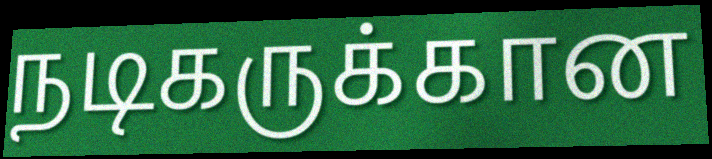
நடிகருக்கான